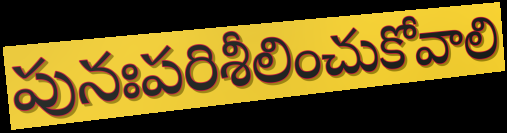
పునఃపరిశీలించుకోవాలి